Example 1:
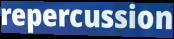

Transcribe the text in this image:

repercussion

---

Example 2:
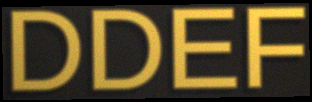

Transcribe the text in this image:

DDEF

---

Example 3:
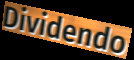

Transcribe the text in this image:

Dividendo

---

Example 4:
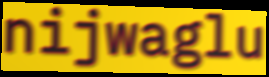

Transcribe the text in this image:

nijwaglu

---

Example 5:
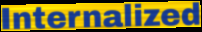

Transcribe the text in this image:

Internalized